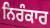
ਨਿਰੰਕਾਰ